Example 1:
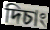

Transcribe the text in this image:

দিচাং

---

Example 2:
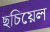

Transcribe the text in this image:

ছচিয়েল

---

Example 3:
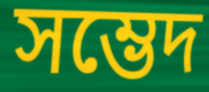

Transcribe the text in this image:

সম্ভেদ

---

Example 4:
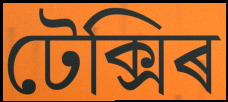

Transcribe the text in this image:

টেক্সিৰ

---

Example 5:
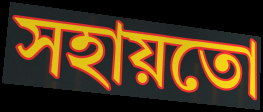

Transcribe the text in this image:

সহায়তো